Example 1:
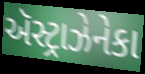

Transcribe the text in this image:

ઍસ્ટ્રાઝેનેકા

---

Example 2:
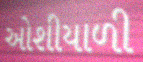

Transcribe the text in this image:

ઓશીયાળી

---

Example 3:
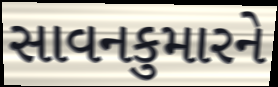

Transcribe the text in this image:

સાવનકુમારને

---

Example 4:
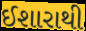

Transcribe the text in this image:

ઈશારાથી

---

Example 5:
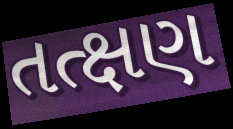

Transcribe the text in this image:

તત્ક્ષણ